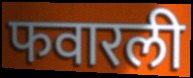
फवारली